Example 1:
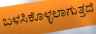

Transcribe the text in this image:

ಬಳಸಿಕೊಳ್ಳಲಾಗುತ್ತದೆ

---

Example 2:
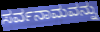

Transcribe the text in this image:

ಸರ್ವನಾಮವನ್ನು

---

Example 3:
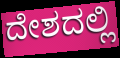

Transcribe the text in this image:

ದೇಶದಲ್ಲಿ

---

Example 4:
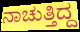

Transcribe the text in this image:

ನಾಚುತ್ತಿದ್ದ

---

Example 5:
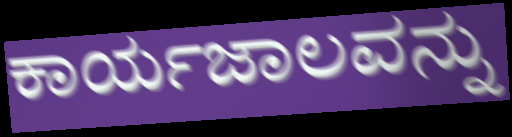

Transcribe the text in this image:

ಕಾರ್ಯಜಾಲವನ್ನು